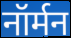
नॉर्मन